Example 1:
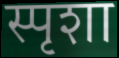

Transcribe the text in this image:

स्पृशा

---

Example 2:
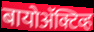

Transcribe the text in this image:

बायोॲक्टिव्ह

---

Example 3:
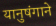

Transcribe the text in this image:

यानुषंगाने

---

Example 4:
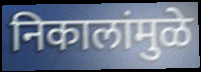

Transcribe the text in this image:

निकालांमुळे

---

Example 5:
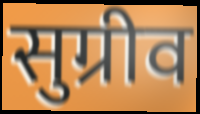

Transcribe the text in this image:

सुग्रीव